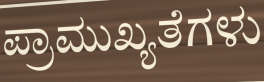
ಪ್ರಾಮುಖ್ಯತೆಗಳು